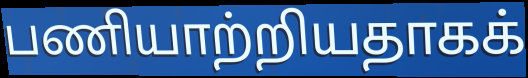
பணியாற்றியதாகக்